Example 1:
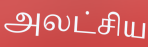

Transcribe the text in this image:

அலட்சிய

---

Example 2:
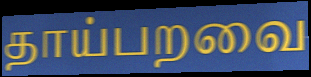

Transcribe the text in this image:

தாய்பறவை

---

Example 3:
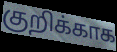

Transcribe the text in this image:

குறிக்காக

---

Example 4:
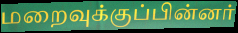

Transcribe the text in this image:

மறைவுக்குப்பின்னர்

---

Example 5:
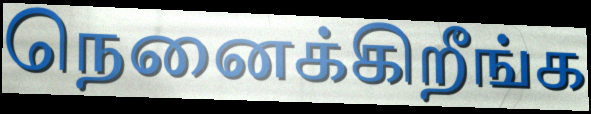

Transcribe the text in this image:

நெனைக்கிறீங்க